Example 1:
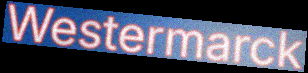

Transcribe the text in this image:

Westermarck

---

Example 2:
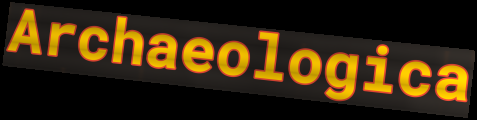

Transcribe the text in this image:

Archaeologica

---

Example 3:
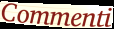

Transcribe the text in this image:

Commenti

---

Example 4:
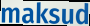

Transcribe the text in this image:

maksud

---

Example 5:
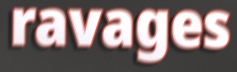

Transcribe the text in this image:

ravages